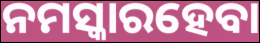
ନମସ୍କାରହେବା